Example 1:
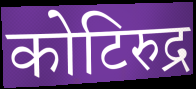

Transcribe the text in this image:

कोटिरुद्र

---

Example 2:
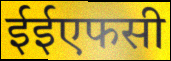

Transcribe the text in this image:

ईईएफसी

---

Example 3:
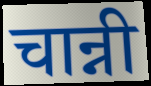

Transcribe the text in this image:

चान्नी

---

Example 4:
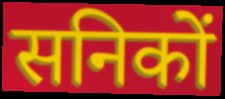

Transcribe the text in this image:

सनिकों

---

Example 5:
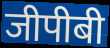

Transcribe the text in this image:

जीपीबी